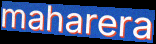
maharera